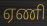
ஏணி